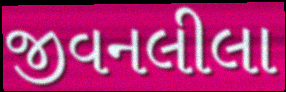
જીવનલીલા